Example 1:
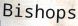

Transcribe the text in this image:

Bishops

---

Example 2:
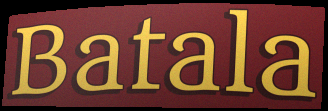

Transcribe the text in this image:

Batala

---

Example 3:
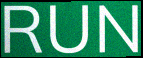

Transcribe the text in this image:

RUN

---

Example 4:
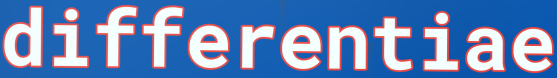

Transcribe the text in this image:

differentiae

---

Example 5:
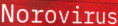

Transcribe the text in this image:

Norovirus